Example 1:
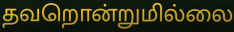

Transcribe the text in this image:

தவறொன்றுமில்லை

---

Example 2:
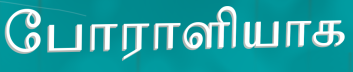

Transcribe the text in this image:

போராளியாக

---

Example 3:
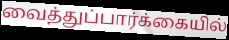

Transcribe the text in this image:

வைத்துப்பார்க்கையில்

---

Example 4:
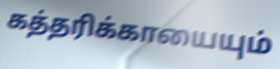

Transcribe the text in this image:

கத்தரிக்காயையும்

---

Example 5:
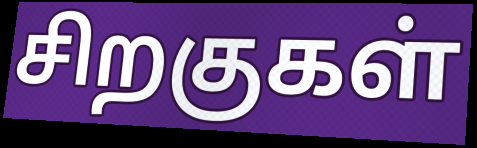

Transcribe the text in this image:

சிறகுகள்